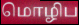
மொழிப